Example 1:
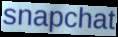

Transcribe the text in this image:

snapchat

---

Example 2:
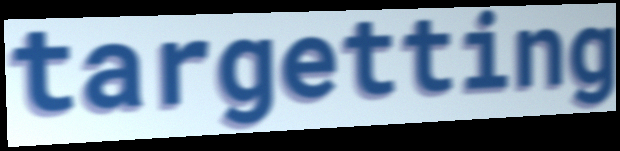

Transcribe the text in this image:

targetting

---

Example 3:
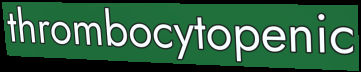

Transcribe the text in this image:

thrombocytopenic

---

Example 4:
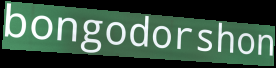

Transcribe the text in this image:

bongodorshon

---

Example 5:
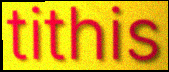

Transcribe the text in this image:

tithis